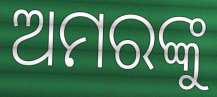
ଅମରଙ୍କୁ